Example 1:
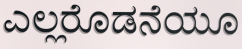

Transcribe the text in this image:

ಎಲ್ಲರೊಡನೆಯೂ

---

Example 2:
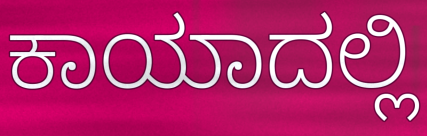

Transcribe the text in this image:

ಕಾಯಾದಲ್ಲಿ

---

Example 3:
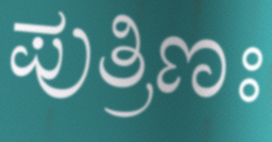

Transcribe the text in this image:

ಪುತ್ರಿಣಃ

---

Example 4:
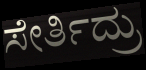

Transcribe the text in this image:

ಸೇರ್ತಿದ್ರು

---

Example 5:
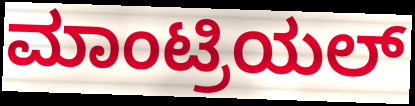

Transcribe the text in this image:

ಮಾಂಟ್ರಿಯಲ್